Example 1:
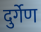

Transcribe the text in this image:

दुर्गेण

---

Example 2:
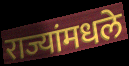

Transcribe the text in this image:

राज्यांमधले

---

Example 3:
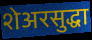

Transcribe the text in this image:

शेअरसुद्धा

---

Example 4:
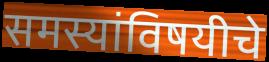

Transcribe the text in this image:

समस्यांविषयीचे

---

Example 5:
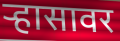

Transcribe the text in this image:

ऱ्हासावर